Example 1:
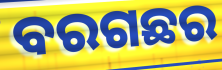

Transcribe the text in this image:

ବରଗଛର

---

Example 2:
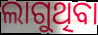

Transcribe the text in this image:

ଲାଗୁଥିବା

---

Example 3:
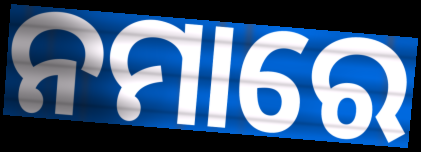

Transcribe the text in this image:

ନମାରେ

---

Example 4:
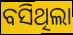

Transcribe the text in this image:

ବସିଥିଲା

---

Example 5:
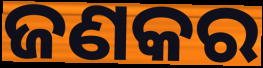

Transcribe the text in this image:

ଜଣକର